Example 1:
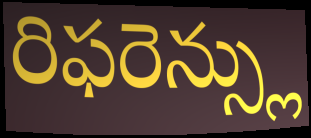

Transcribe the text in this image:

రిఫరెన్స్లు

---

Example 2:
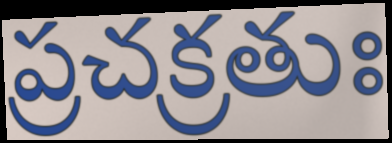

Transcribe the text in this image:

ప్రచక్రతుః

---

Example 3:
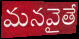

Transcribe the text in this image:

మనవైతే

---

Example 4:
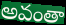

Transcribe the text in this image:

అవంతా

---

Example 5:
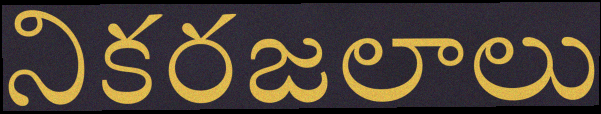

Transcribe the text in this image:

నికరజలాలు